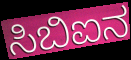
ಸಿಬಿಐನ